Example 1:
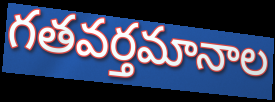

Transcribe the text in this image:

గతవర్తమానాల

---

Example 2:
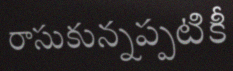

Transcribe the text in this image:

రాసుకున్నప్పటికీ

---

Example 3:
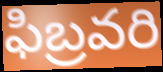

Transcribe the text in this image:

ఫిబ్రవరి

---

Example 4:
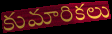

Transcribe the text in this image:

కుమారికలు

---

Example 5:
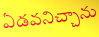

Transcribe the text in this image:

ఏడవనిచ్చాను